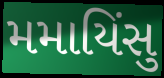
મમાયિંસુ